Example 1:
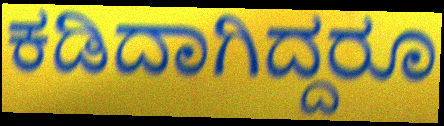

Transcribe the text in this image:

ಕಡಿದಾಗಿದ್ದರೂ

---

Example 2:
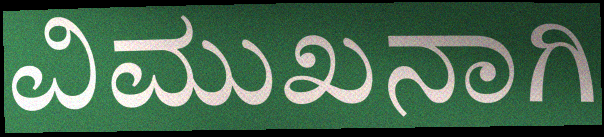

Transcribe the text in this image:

ವಿಮುಖನಾಗಿ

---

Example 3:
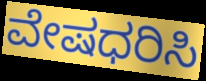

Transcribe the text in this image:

ವೇಷಧರಿಸಿ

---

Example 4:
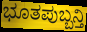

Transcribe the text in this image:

ಭೂತಪುಬ್ಬನ್ತಿ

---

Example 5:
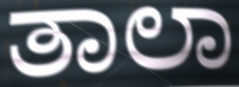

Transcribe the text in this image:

ತಾಲಾ